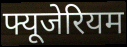
फ्यूजेरियम